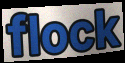
flock